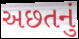
અછતનું